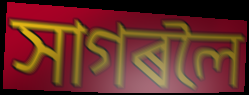
সাগৰলৈ